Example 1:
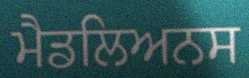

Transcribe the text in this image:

ਮੈਡਲਿਅਨਸ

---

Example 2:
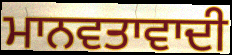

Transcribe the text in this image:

ਮਾਨਵਤਾਵਾਦੀ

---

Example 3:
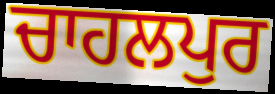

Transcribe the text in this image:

ਚਾਹਲਪੁਰ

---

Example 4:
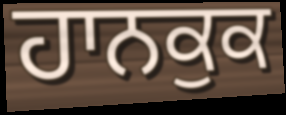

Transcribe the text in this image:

ਹਾਨਕੁਕ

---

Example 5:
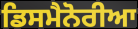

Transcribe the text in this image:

ਡਿਸਮੈਨੋਰੀਆ